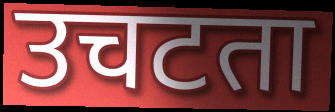
उचटता